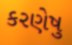
કરણેષુ